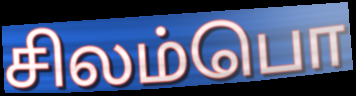
சிலம்பொ